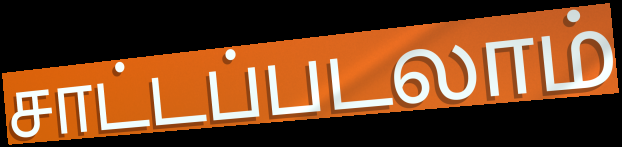
சாட்டப்படலாம்